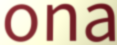
ona